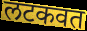
लटकवत